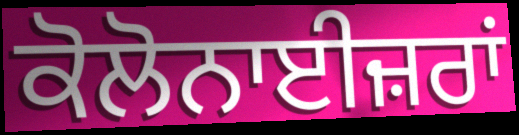
ਕੋਲੋਨਾਈਜ਼ਰਾਂ